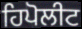
ਹਿਪੋਲੀਟ